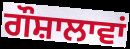
ਗੌਸ਼ਾਲਾਵਾਂ